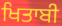
ਖਿਤਾਬੀ